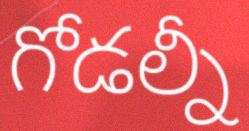
గోడల్నీ